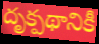
దృక్పథానికీ